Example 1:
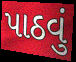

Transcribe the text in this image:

પાઠવું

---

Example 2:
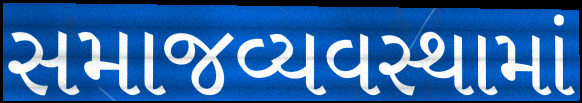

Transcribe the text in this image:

સમાજવ્યવસ્થામાં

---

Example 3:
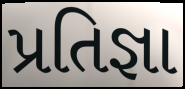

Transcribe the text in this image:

પ્રતિજ્ઞા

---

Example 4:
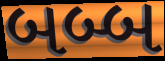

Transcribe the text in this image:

બબ્બ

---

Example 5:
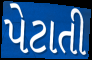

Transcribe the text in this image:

પેટાતી